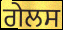
ਗੇਲਸ